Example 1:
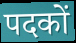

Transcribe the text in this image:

पदकों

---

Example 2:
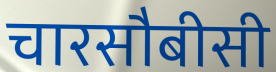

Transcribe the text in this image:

चारसौबीसी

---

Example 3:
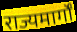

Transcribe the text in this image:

राज्यमार्गों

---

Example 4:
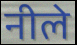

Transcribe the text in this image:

नीले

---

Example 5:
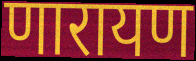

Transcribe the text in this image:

णारायण